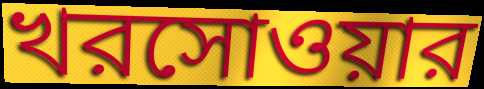
খরসোওয়ার